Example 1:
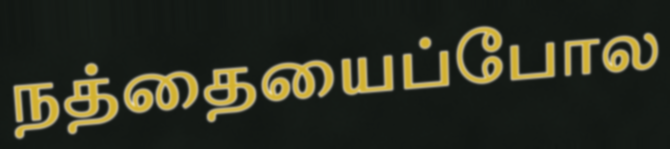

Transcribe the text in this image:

நத்தையைப்போல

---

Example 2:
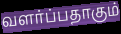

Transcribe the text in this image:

வளர்ப்பதாகும்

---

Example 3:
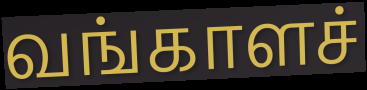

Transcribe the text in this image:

வங்காளச்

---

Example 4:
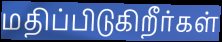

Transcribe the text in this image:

மதிப்பிடுகிறீர்கள்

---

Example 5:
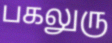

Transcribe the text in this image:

பகலுரு